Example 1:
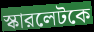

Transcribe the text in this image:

স্কারলেটকে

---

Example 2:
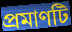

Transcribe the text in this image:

প্রমাণটি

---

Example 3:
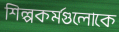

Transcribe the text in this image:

শিল্পকর্মগুলোকে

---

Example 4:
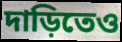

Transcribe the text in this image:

দাড়িতেও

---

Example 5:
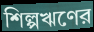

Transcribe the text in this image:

শিল্পঋণের